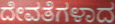
ದೇವತೆಗಳಾದ